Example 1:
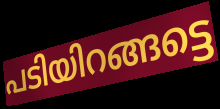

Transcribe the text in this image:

പടിയിറങ്ങട്ടെ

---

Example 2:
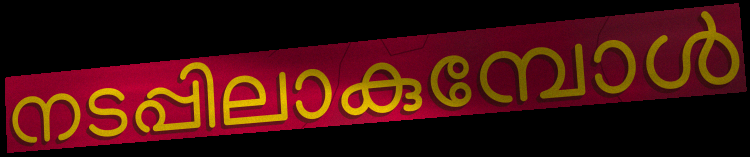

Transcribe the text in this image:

നടപ്പിലാകുമ്പോൾ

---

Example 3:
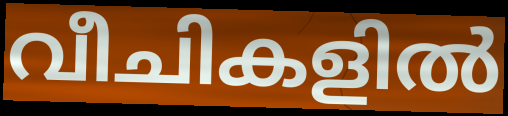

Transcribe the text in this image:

വീചികളിൽ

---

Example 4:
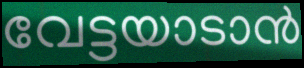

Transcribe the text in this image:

വേട്ടയാടാൻ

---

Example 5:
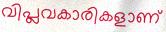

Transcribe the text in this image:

വിപ്ലവകാരികളാണ്